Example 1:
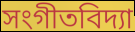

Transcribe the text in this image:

সংগীতবিদ্যা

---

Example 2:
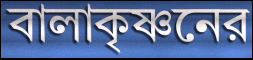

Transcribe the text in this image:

বালাকৃষ্ণনের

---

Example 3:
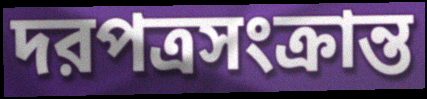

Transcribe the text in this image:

দরপত্রসংক্রান্ত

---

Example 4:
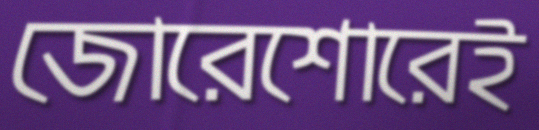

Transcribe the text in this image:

জোরেশোরেই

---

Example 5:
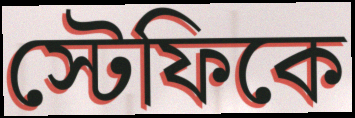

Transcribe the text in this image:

স্টেফিকে